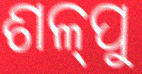
ଶଳ୍‍ପୁ